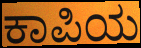
ಕಾಪಿಯ